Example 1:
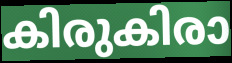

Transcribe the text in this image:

കിരുകിരാ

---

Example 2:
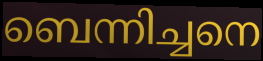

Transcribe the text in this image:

ബെന്നിച്ചനെ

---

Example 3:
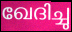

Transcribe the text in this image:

ഖേദിച്ചു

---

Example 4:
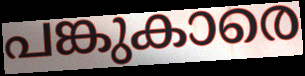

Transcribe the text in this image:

പങ്കുകാരെ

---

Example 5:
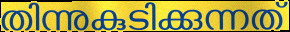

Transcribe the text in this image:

തിന്നുകുടിക്കുന്നത്